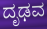
ದೃಢವ